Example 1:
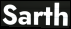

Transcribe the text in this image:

Sarth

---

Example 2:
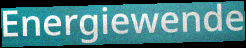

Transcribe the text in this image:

Energiewende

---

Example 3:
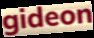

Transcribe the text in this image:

gideon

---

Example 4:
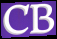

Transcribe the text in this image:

CB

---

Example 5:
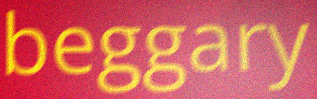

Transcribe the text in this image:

beggary